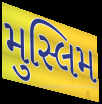
મુસ્લિમ